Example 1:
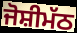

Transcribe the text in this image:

ਜੋਸ਼ੀਮੱਠ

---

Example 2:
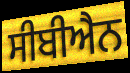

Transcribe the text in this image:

ਸੀਬੀਐਨ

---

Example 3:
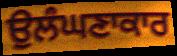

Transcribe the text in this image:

ਉਲੰਘਣਾਕਾਰ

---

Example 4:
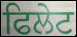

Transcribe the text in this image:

ਫਿਲੇਟ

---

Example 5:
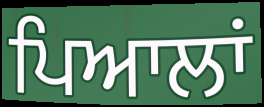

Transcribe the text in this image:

ਪਿਆਲਾਂ